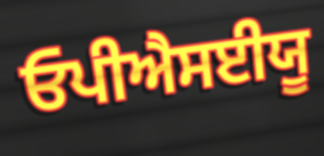
ਓਪੀਐਸਈਯੂ